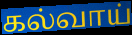
கல்வாய்